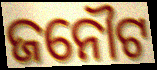
ଜନୌଟ